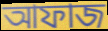
আফাজ